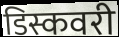
डिस्कवरी